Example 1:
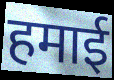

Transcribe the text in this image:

हमाई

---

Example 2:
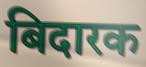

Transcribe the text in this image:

बिदारक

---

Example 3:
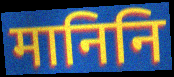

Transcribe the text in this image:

मानिनि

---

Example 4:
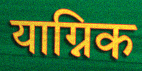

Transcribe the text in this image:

याग्निक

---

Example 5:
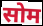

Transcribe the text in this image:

सोम